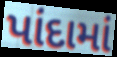
પાંદામાં